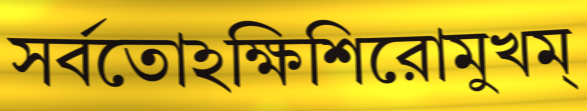
সর্বতোঽক্ষিশিরোমুখম্